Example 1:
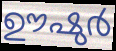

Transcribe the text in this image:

ഊഷുർ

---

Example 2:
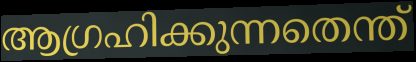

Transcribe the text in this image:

ആഗ്രഹിക്കുന്നതെന്ത്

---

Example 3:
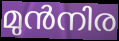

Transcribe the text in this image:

മുൻനിര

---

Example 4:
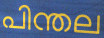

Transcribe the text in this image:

പിന്തല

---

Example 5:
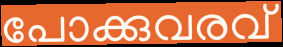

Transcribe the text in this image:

പോക്കുവരവ്